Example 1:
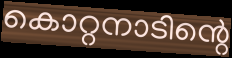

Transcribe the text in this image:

കൊറ്റനാടിന്റെ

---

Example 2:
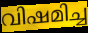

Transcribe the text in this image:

വിഷമിച്ച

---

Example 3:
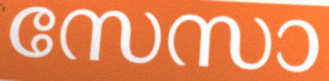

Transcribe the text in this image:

സേസാ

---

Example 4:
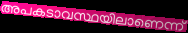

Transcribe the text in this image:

അപകടാവസ്ഥയിലാണെന്ന്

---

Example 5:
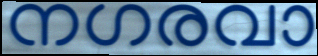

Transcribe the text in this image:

നഗരവാ